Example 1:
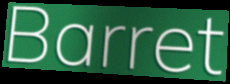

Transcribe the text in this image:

Barret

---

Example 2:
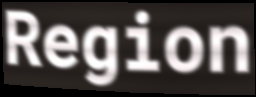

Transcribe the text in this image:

Region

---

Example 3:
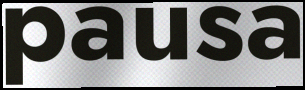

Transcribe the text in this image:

pausa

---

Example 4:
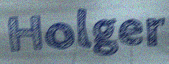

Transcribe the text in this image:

Holger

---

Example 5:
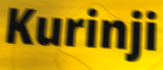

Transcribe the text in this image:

Kurinji